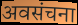
अवसंचना